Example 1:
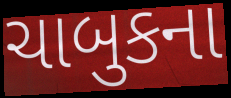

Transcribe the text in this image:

ચાબુકના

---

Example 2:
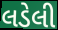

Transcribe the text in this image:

લડેલી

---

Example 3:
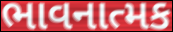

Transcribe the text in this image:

ભાવનાત્મક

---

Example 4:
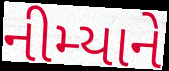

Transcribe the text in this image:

નીમ્યાને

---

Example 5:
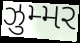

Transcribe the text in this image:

ઝુમ્મર